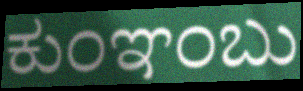
ಕುಂಞಂಬು